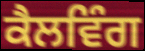
ਕੈਲਵਿੰਗ